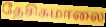
தேசிகமாலை